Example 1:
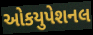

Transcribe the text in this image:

ઓકયુપેશનલ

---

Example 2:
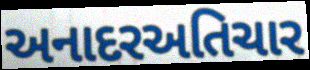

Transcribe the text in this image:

અનાદરઅતિચાર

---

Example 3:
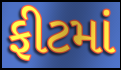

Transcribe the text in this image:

ફીટમાં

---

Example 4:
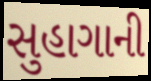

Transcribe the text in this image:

સુહાગાની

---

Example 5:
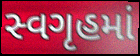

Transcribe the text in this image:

સ્વગૃહમાં